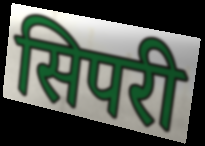
सिपरी